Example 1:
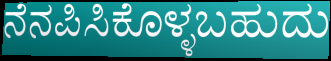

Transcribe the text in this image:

ನೆನಪಿಸಿಕೊಳ್ಳಬಹುದು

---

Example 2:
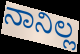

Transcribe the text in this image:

ನಾನಿಲ್ಲ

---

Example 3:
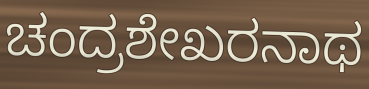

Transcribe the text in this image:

ಚಂದ್ರಶೇಖರನಾಥ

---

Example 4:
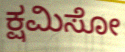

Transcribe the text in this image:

ಕ್ಷಮಿಸೋ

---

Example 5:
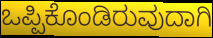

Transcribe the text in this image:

ಒಪ್ಪಿಕೊಂಡಿರುವುದಾಗಿ